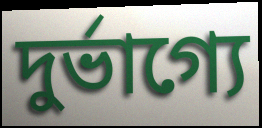
দুর্ভাগ্যে